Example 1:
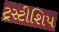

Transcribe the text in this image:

ટ્રસ્ટીશિપ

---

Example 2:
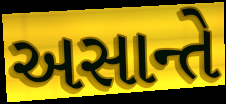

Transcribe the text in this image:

અસાન્તે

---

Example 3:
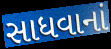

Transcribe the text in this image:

સાધવાનાં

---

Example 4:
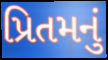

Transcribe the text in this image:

પ્રિતમનું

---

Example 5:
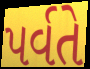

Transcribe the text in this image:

પર્વતે